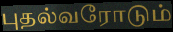
புதல்வரோடும்